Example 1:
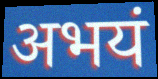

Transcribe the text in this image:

अभयं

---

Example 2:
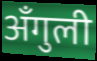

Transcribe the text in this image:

अँगुली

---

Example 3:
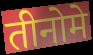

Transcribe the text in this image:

तीनोमे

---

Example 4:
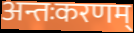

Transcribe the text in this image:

अन्तःकरणम्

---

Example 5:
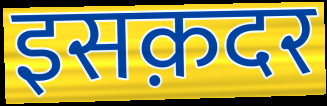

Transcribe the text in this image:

इसक़दर